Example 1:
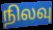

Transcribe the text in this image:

நிலவு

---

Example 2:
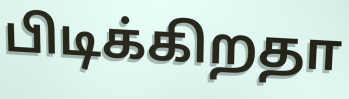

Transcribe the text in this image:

பிடிக்கிறதா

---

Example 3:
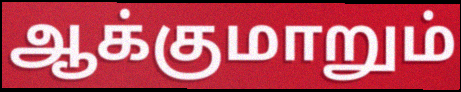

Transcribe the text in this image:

ஆக்குமாறும்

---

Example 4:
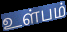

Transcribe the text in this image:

உள்பம்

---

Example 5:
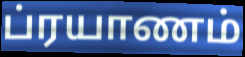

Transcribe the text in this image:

ப்ரயாணம்